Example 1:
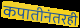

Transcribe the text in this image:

कपातीनंतरही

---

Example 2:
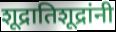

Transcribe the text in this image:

शूद्रातिशूद्रांनी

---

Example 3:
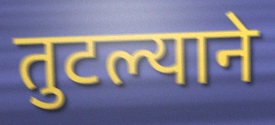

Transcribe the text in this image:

तुटल्याने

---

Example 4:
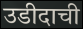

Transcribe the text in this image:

उडीदाची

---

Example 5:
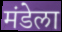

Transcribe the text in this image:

मंडेला